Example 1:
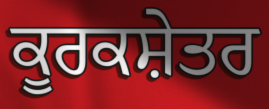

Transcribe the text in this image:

ਕੂਰਕਸ਼ੇਤਰ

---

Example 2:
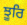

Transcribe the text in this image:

ਝੂਰਿ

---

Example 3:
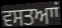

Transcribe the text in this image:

ਵਸਤਆਾਂ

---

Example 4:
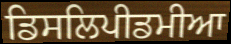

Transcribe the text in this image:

ਡਿਸਲਿਪੀਡਮੀਆ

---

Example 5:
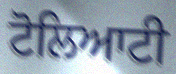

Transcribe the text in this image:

ਟੋਲਿਆਟੀ